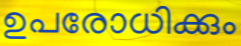
ഉപരോധിക്കും